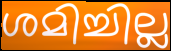
ശമിച്ചില്ല